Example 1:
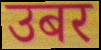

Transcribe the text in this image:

उबर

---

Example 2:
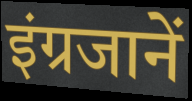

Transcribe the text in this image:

इंग्रजानें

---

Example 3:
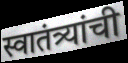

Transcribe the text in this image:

स्वातंत्र्यांची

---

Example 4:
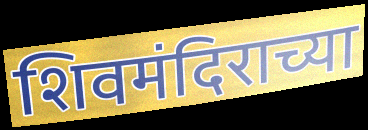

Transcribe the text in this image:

शिवमंदिराच्या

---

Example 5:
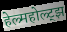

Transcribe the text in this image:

हेल्महोल्ट्झ